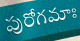
పురోగమాః